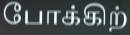
போக்கிற்